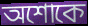
অশোকে